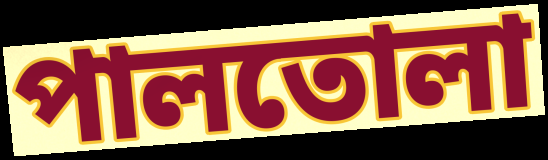
পালতোলা